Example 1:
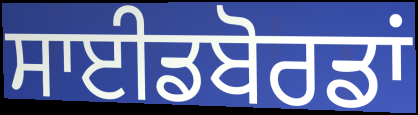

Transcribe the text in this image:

ਸਾਈਡਬੋਰਡਾਂ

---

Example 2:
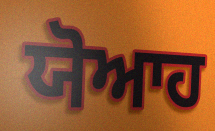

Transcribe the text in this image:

ਯੋਆਹ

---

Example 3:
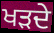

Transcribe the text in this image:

ਖੜਦੇ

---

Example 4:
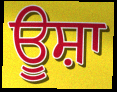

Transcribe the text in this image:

ਊਸ਼ਾ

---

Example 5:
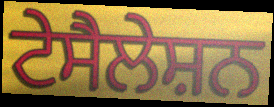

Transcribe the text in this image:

ਟੇਸੈਲੇਸ਼ਨ